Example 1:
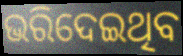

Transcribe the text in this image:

ଭରିଦେଇଥିବ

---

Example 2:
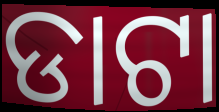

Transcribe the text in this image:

ଡାଟା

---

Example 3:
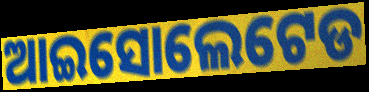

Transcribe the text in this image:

ଆଇସୋଲେଟେଡ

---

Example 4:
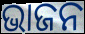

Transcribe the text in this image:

ଭାଜନ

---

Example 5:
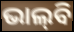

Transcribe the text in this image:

ଭାଲ୍‌ବି